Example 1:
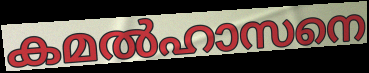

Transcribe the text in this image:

കമൽഹാസനെ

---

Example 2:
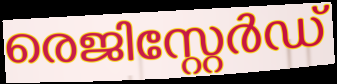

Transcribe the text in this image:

രെജിസ്റ്റേർഡ്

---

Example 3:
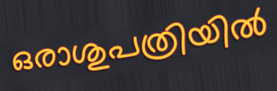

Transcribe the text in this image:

ഒരാശുപത്രിയിൽ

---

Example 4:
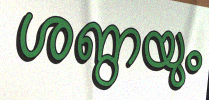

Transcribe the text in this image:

ശണ്ഠയും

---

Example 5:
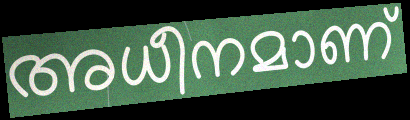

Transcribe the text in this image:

അധീനമാണ്